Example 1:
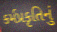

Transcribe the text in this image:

કર્મપ્રકૃતિનું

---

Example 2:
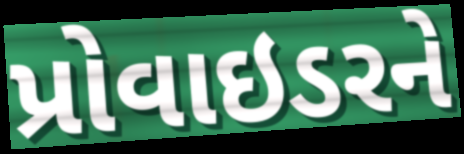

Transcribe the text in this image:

પ્રોવાઇડરને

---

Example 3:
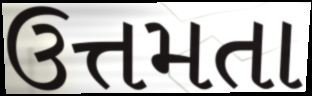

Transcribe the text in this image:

ઉત્તમતા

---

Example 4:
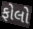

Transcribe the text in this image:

ફોલો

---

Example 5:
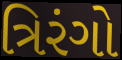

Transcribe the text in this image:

ત્રિરંગો